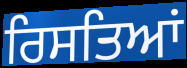
ਰਿਸਤਿਆਂ